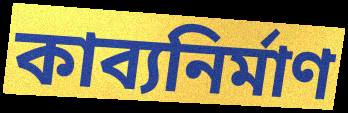
কাব্যনির্মাণ